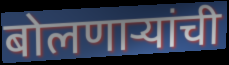
बोलणाऱ्यांची